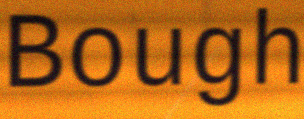
Bough